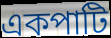
একপাটি